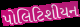
પોલિટિશીયન